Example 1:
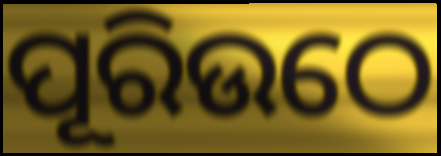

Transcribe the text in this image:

ପୂରିଉଠେ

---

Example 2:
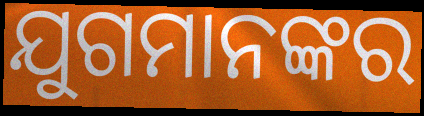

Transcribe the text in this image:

ଯୁଗମାନଙ୍କର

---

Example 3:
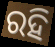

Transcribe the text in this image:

ରହି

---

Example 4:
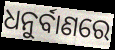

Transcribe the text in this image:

ଧନୁର୍ବାଣରେ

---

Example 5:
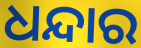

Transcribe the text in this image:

ଧନ୍ଦାର